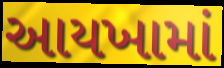
આયખામાં